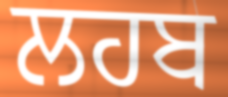
ਲਹਬ